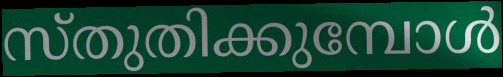
സ്തുതിക്കുമ്പോൾ